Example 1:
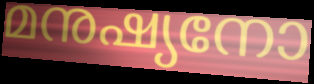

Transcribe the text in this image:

മനുഷ്യനോ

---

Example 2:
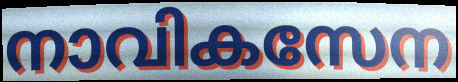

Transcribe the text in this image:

നാവികസേന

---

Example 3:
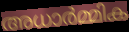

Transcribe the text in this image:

അധാർമ്മിക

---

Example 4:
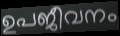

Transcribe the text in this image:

ഉപജീവനം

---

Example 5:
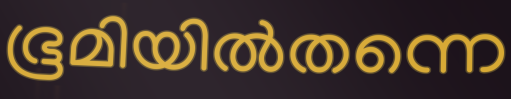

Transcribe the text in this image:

ഭൂമിയിൽതന്നെ